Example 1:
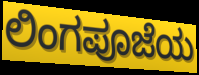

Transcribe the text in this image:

ಲಿಂಗಪೂಜೆಯ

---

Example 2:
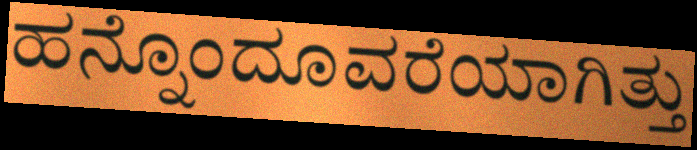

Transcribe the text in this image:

ಹನ್ನೊಂದೂವರೆಯಾಗಿತ್ತು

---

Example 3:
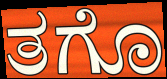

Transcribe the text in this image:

ತಗೊ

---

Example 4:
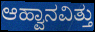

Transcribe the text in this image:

ಆಹ್ವಾನವಿತ್ತು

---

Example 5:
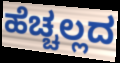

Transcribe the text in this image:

ಹೆಚ್ಚಲ್ಲದ